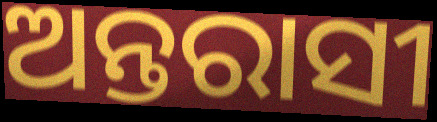
ଅନ୍ତରାସୀ